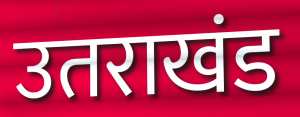
उतराखंड